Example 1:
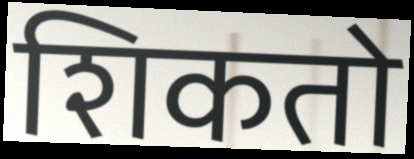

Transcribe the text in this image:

शिकतो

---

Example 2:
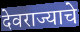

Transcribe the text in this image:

देवराज्याचे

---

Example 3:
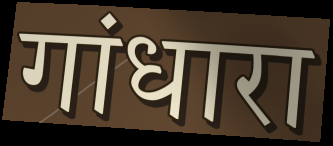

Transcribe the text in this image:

गांधारा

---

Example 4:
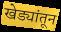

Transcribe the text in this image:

खेड्यांतून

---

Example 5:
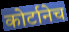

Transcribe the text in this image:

कोर्टानेच